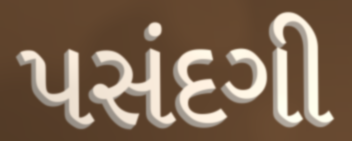
પસંદગી